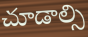
చూడాల్సి